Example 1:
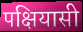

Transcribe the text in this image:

पक्षियासी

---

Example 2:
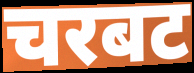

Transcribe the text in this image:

चरबट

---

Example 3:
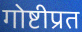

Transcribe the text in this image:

गोष्टीप्रत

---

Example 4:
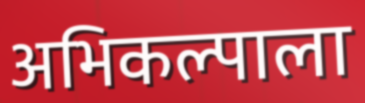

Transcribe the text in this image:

अभिकल्पाला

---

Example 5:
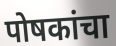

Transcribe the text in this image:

पोषकांचा